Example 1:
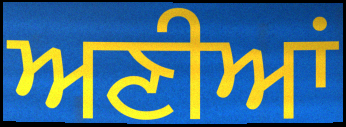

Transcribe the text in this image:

ਅਣੀਆਂ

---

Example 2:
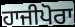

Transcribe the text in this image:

ਹਾਜੀਪੋਰਾ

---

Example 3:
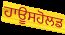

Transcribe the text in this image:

ਹਾਊਸਹੋਲਡ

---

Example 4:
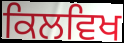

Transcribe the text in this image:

ਕਿਲਵਿਖ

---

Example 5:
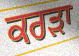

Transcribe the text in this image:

ਕਰੜਾ